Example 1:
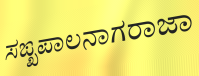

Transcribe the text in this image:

ಸಙ್ಖಪಾಲನಾಗರಾಜಾ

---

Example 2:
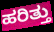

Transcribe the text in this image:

ಹರಿತ್ತು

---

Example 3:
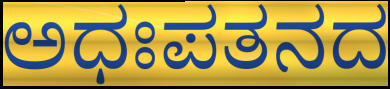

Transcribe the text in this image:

ಅಧಃಪತನದ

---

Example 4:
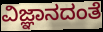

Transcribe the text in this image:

ವಿಜ್ಞಾನದಂತೆ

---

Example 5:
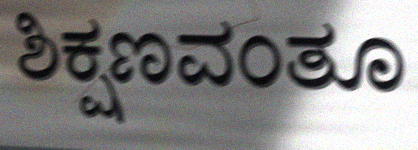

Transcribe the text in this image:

ಶಿಕ್ಷಣವಂತೂ